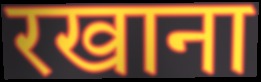
रखाना